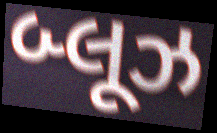
બ્લૂઝ